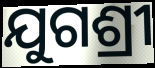
ଯୁଗଶ୍ରୀ